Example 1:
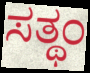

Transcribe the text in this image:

ಸತ್ಥಂ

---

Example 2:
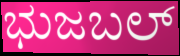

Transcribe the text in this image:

ಭುಜಬಲ್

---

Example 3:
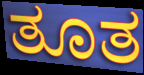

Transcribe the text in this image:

ತೂತ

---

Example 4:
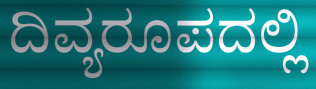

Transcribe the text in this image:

ದಿವ್ಯರೂಪದಲ್ಲಿ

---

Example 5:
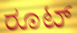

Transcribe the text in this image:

ರೂಟ್